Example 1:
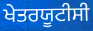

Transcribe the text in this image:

ਖੇਤਰਯੂਟੀਸੀ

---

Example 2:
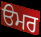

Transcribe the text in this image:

ੳਮਰ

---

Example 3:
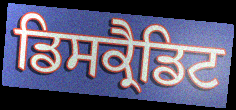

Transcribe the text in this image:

ਡਿਸਕ੍ਰੈਡਿਟ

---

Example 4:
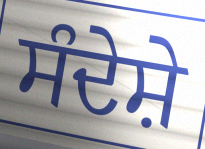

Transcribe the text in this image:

ਸੰਦੇਸ਼ੇ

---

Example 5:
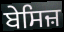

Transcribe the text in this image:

ਬੇਸਿਜ਼